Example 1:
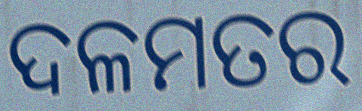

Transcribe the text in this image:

ଦଳମତର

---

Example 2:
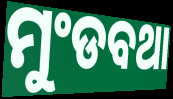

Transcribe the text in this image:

ମୁଂଡବଥା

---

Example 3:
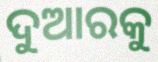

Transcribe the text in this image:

ଦୁଆରକୁ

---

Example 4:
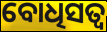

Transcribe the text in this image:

ବୋଧିସତ୍ୱ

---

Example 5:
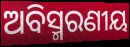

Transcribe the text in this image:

ଅବିସ୍ମରଣୀୟ